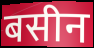
बसीन